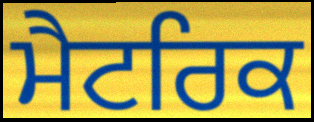
ਮੈਟਰਿਕ